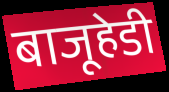
बाजूहेडी